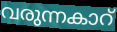
വരുന്നകാറ്